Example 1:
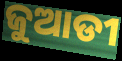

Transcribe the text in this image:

ଜୁଆଡୀ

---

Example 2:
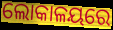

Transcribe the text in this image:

ଲୋକାଳୟରେ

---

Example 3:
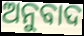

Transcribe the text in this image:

ଅନୁବାଦ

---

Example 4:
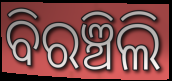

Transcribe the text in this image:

ବିରଞ୍ଚିଲି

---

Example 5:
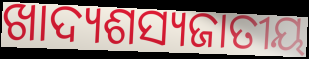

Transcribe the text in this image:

ଖାଦ୍ୟଶସ୍ୟଜାତୀୟ